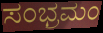
ಸಂಭ್ರಮಂ